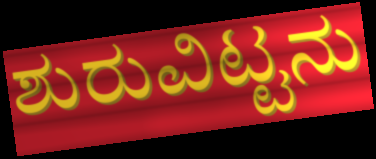
ಶುರುವಿಟ್ಟನು